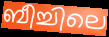
ബീച്ചിലെ